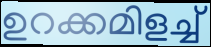
ഉറക്കമിളച്ച്